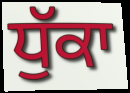
ਧੁੱਕਾ